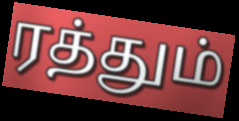
ரத்தும்